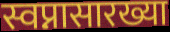
स्वप्नासारख्या